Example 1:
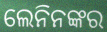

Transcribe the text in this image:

ଲେନିନଙ୍କର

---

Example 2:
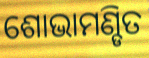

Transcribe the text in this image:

ଶୋଭାମଣ୍ଡିତ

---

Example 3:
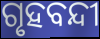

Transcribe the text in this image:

ଗୃହବନ୍ଦୀ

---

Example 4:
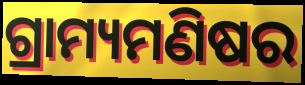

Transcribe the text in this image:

ଗ୍ରାମ୍ୟମଣିଷର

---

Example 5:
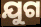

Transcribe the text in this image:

ଯୁଗ